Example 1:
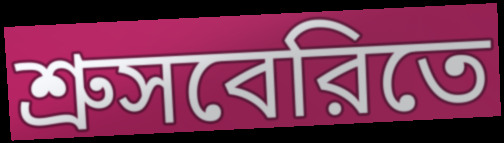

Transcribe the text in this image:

শ্রুসবেরিতে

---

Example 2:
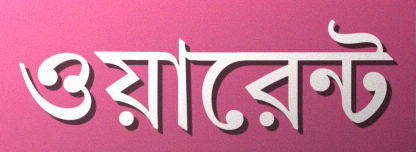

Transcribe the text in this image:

ওয়ারেন্ট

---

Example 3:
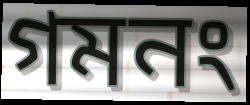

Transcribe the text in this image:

গমনং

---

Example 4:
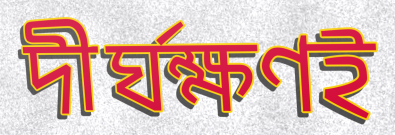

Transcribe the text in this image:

দীর্ঘক্ষণই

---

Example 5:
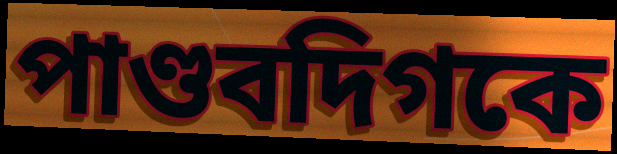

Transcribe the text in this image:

পাণ্ডবদিগকে